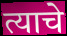
त्याचे